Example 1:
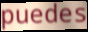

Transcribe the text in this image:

puedes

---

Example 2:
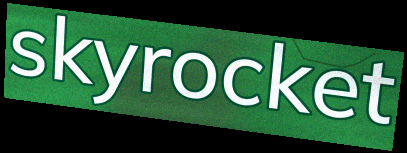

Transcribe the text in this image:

skyrocket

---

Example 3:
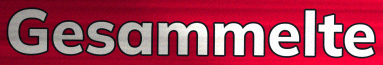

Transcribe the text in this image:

Gesammelte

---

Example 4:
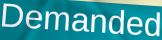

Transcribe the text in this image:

Demanded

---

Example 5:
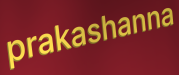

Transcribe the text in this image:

prakashanna